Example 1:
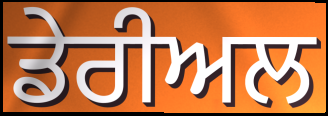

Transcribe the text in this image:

ਡੇਰੀਅਲ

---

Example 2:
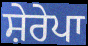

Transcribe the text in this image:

ਸ਼ੇਰੇਪਾ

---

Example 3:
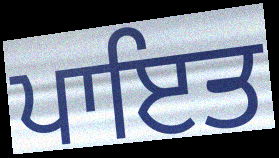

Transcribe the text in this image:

ਪਾਇਤ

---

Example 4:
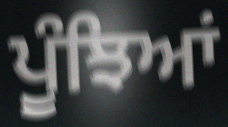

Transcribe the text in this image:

ਪੂੰਝਿਆਂ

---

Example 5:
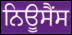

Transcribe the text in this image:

ਨਿਊਸੈਂਸ